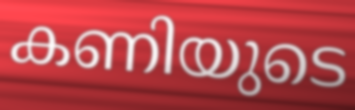
കണിയുടെ